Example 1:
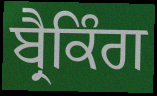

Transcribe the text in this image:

ਬ੍ਰੈਕਿੰਗ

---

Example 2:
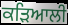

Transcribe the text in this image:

ਕੜਿਆਲੀ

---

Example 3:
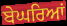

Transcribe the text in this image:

ਬੇਘਰਿਆਂ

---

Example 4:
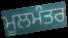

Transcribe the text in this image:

ਮੂਲਮੰਤਰ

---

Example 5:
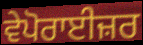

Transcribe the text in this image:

ਵੇਪੋਰਾਈਜ਼ਰ